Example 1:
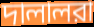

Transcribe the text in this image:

দালালরা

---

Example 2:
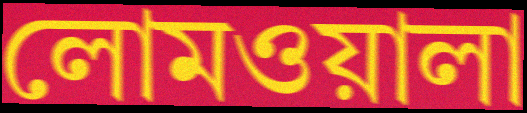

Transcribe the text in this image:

লোমওয়ালা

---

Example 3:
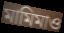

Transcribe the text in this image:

মামিমাও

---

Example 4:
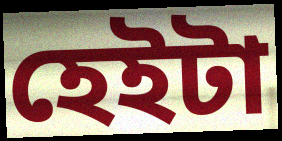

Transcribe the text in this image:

হেইটা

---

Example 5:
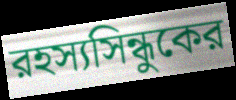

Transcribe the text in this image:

রহস্যসিন্ধুকের